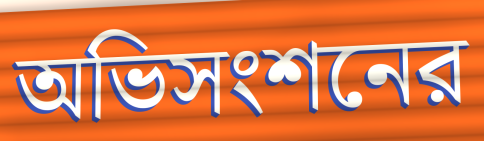
অভিসংশনের